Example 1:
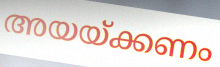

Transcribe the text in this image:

അയയ്ക്കണം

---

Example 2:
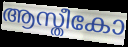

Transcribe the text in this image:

ആസ്തീകോ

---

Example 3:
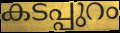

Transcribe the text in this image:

കടപ്പുറം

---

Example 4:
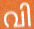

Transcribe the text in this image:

വി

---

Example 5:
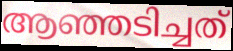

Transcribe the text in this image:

ആഞ്ഞടിച്ചത്